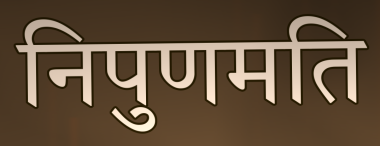
निपुणमति